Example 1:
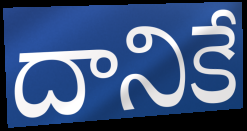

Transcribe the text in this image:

దానికే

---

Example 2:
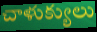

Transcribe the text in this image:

చాళుక్యులు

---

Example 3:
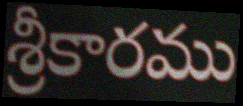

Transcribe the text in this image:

శ్రీకారము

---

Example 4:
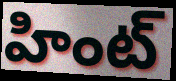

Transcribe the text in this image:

హింట్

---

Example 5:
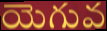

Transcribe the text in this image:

యెగువ